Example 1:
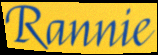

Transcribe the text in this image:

Rannie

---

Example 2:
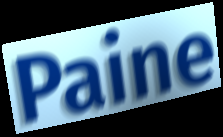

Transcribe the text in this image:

Paine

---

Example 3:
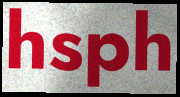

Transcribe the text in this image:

hsph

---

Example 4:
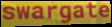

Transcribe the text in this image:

swargate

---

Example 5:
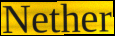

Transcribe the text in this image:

Nether